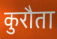
कुरौता